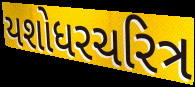
યશોધરચરિત્ર